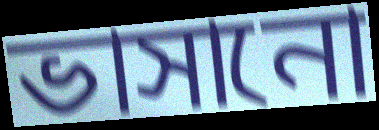
ভাসানো